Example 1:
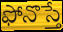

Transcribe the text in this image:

ఫోనొస్తే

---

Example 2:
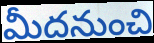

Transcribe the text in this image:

మీదనుంచి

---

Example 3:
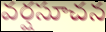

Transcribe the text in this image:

వర్షసూచన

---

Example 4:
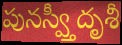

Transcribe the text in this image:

పునస్వ్తీదృశీ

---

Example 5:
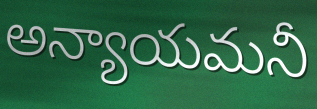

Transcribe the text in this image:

అన్యాయమనీ